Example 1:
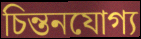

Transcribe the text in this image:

চিন্তনযোগ্য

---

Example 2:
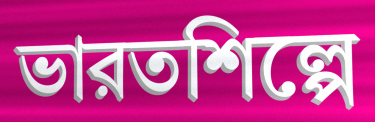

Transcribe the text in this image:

ভারতশিল্পে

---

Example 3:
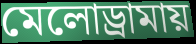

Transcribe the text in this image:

মেলোড্রামায়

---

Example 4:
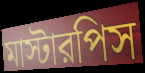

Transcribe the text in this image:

মাস্টারপিস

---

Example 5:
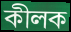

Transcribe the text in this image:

কীলক